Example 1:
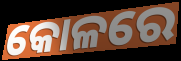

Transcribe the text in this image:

କୋଳରେ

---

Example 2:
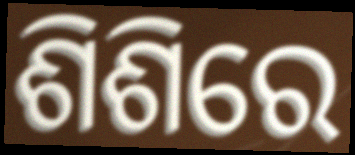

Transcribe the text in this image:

ଶିଶିରେ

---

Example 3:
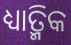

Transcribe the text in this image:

ଧ୍ୟାତ୍ମିକ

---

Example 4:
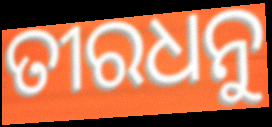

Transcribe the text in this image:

ତୀରଧନୁ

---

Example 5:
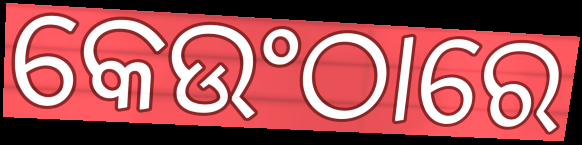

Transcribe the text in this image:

କେଉଂଠାରେ